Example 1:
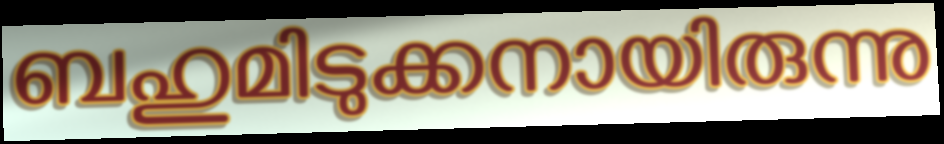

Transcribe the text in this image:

ബഹുമിടുക്കനായിരുന്നു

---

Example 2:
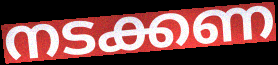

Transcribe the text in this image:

നടക്കണ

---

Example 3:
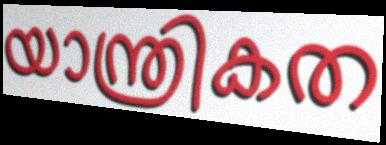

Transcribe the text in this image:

യാന്ത്രികത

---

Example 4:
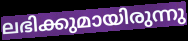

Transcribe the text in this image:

ലഭിക്കുമായിരുന്നു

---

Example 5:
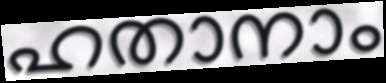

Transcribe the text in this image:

ഹതാനാം